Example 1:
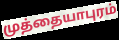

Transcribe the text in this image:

முத்தையாபுரம்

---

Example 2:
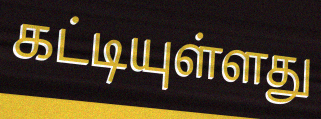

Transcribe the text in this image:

கட்டியுள்ளது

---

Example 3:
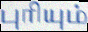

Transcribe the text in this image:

புரியும்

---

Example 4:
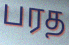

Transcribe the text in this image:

பரத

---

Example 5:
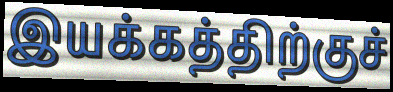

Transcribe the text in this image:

இயக்கத்திற்குச்